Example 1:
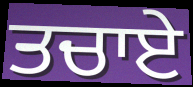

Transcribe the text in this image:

ਤਚਾਏ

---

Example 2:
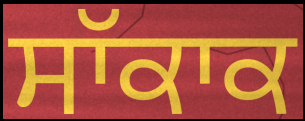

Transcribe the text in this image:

ਸਾੱਕਾਕ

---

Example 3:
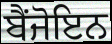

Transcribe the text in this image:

ਬੈਂਜੋਇਨ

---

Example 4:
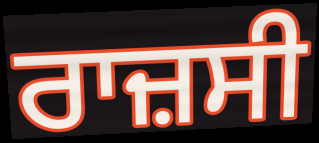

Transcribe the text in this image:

ਰਾਜ਼ਸੀ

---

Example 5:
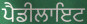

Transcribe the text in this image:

ਪੈਡੀਲਾਇਟ